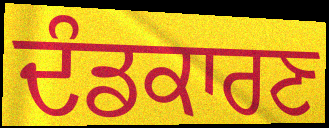
ਦੰਡਕਾਰਣ